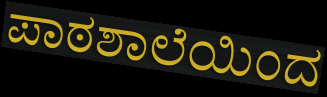
ಪಾಠಶಾಲೆಯಿಂದ